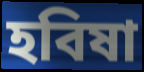
হবিষা